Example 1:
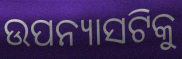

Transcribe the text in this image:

ଉପନ୍ୟାସଟିକୁ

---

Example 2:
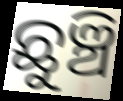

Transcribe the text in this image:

ଛୁଞ୍ଚି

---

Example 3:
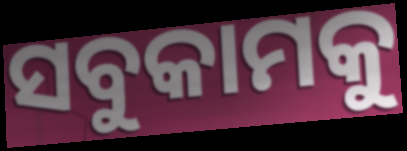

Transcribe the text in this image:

ସବୁକାମକୁ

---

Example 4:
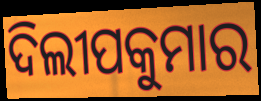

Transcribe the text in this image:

ଦିଲୀପକୁମାର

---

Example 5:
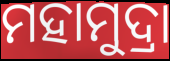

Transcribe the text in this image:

ମହାମୁଦ୍ରା